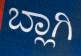
ಬ್ಲಾಗಿ